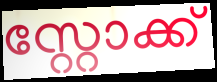
സ്റ്റോക്ക്